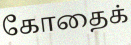
கோதைக்